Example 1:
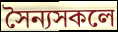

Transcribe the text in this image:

সৈন্যসকলে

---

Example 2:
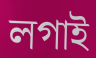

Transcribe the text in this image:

লগাই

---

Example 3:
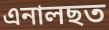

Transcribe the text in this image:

এনালছত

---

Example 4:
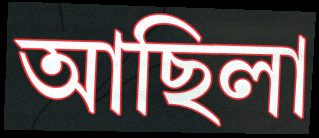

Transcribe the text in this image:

আছিলা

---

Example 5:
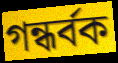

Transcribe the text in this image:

গন্ধৰ্বক